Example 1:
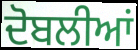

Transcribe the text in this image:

ਦੋਬਲੀਆਂ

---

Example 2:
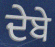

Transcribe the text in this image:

ਦੇਬੇ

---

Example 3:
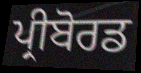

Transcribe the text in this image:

ਪ੍ਰੀਬੋਰਡ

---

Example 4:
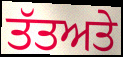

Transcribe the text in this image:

ਤੱਤਅਤੇ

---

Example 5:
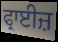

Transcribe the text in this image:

ਫ੍ਰਾਈਜ਼